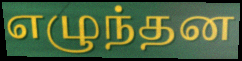
எழுந்தன